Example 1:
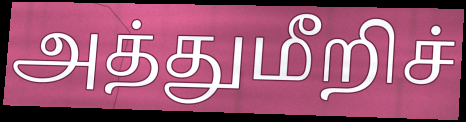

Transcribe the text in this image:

அத்துமீறிச்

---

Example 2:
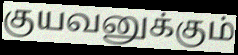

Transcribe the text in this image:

குயவனுக்கும்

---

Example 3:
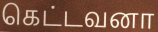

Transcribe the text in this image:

கெட்டவனா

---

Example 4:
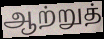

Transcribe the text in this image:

ஆற்றுத்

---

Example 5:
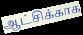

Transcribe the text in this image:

ஆட்சிக்காக